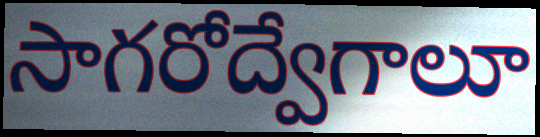
సాగరోద్వేగాలూ